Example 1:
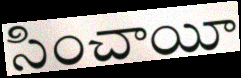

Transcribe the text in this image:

సించాయీ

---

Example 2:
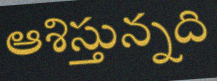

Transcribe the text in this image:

ఆశిస్తున్నది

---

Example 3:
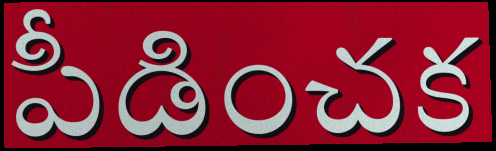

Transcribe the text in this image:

పీడించక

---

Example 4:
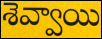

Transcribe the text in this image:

శెవ్వాయి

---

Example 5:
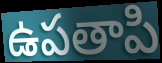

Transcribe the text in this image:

ఉపతాపి